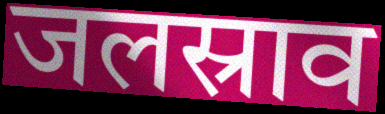
जलस्राव